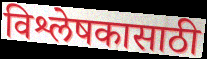
विश्लेषकासाठी